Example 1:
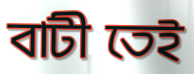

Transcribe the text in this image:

বাটীতেই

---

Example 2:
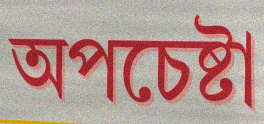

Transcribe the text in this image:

অপচেষ্টা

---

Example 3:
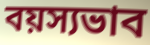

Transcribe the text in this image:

বয়স্যভাব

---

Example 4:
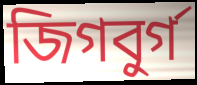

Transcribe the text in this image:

জিগবুর্গ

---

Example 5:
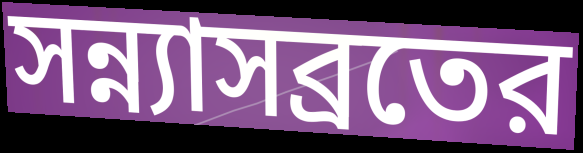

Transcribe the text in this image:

সন্ন্যাসব্রতের